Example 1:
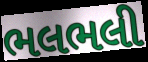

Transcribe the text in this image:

ભલભલી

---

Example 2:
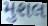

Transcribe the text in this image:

મુશલ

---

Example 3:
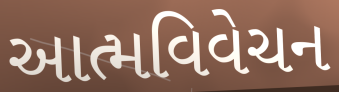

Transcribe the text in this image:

આત્મવિવેચન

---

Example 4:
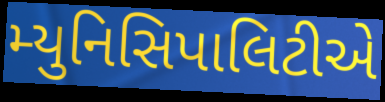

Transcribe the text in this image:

મ્યુનિસિપાલિટીએ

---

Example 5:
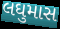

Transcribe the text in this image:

લઘુમાસ